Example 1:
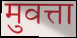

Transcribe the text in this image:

मुवत्ता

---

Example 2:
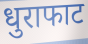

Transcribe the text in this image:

धुराफाट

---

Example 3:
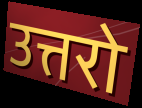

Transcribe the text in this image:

उत्तरो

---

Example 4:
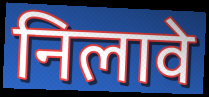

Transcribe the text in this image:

निलावे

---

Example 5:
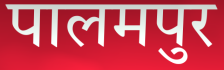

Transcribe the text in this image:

पालमपुर